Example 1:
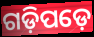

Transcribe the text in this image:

ଗଡ଼ିପଡ଼େ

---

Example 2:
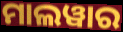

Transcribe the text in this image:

ମାଲୱାର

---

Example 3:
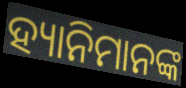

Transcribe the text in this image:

ହ୍ୟାନିମାନଙ୍କ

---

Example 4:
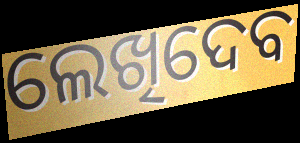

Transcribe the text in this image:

ଲେଖିଦେବ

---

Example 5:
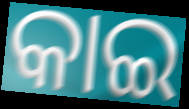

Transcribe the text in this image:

କାଇ